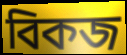
বিকজ